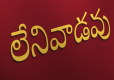
లేనివాడవు